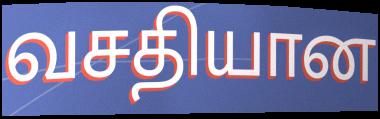
வசதியான